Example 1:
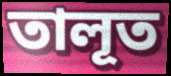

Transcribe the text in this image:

তালূত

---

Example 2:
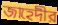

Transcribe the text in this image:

জাহেদীর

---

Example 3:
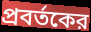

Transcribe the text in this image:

প্রবর্তকের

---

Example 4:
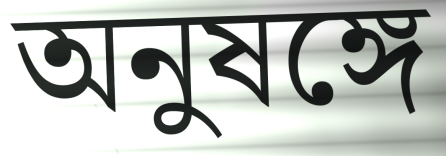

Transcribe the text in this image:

অনুষঙ্গে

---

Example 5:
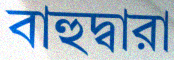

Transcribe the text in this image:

বাহুদ্বারা